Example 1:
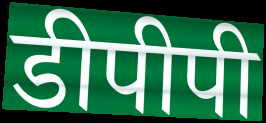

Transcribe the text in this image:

डीपीपी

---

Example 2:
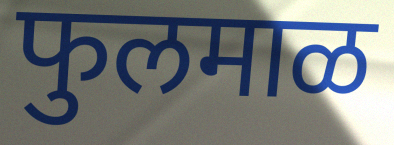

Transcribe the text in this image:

फुलमाळ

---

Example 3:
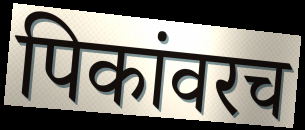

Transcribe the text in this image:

पिकांवरच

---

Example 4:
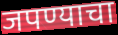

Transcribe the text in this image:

जपण्याचा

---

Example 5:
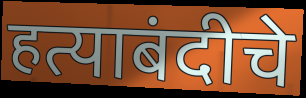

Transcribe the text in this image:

हत्याबंदीचे